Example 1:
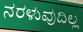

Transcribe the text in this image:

ನರಳುವುದಿಲ್ಲ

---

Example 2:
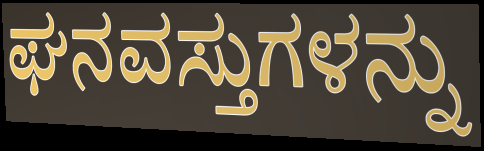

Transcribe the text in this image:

ಘನವಸ್ತುಗಳನ್ನು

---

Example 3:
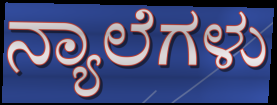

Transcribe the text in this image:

ನ್ಯಾಲೆಗಳು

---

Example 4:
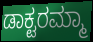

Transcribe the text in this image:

ಡಾಕ್ಟರಮ್ಮಾ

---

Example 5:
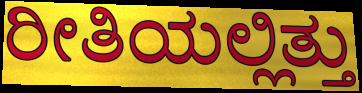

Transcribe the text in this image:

ರೀತಿಯಲ್ಲಿತ್ತು